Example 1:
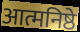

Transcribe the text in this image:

आत्मनिष्ठे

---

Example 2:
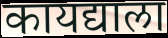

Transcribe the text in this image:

कायद्याला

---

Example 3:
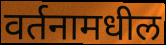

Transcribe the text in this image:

वर्तनामधील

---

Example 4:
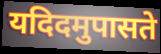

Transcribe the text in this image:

यदिदमुपासते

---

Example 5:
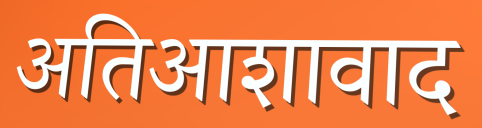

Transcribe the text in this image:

अतिआशावाद